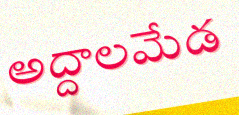
అద్దాలమేడ